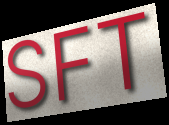
SFT